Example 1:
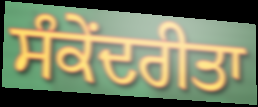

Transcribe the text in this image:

ਸੰਕੇਂਦਰੀਤਾ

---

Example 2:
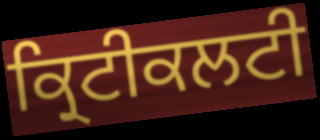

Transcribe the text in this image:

ਕ੍ਰਿਟੀਕਲਟੀ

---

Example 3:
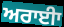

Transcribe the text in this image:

ਅਰਾਈਾ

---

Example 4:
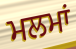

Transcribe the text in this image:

ਮਲਮਾਂ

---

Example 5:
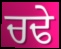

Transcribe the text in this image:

ਚਢੇ